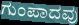
ಗುಂಪಾದವು